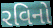
રવિનો